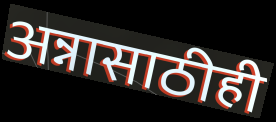
अन्नासाठीही